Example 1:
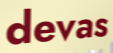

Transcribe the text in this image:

devas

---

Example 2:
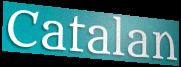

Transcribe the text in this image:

Catalan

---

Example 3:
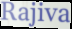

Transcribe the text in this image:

Rajiva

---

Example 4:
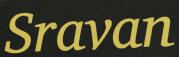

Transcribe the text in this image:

Sravan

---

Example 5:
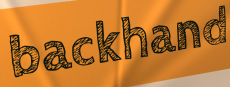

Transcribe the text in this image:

backhand